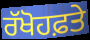
ਰੱਖੋਹਫ਼ਤੇ